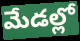
మేడల్లో